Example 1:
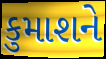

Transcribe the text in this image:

કુમાશને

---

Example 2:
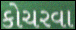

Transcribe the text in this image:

કોચરવા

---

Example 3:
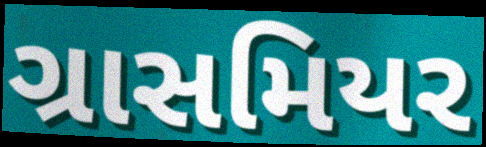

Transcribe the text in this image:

ગ્રાસમિયર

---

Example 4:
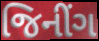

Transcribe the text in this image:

જિનીંગ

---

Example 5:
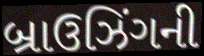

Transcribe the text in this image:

બ્રાઉઝિંગની